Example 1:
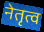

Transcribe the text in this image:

नेतृत्‍व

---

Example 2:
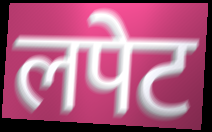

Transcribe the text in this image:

लपेट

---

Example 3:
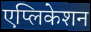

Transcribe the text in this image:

एप्लिकेशन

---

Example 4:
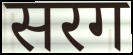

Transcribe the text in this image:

सरग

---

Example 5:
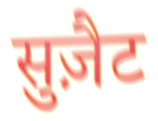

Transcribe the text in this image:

सुज़ैट